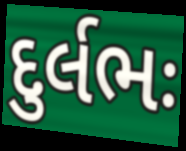
દુર્લભઃ